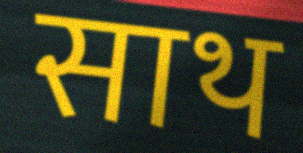
साथ